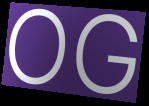
OG